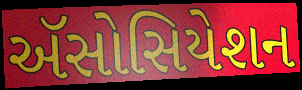
ઍસોસિયેશન